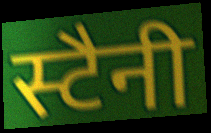
स्टैनी